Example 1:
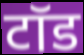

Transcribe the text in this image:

टॉड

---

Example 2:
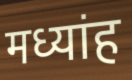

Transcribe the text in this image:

मध्यांह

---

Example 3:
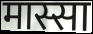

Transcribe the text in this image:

मास्सा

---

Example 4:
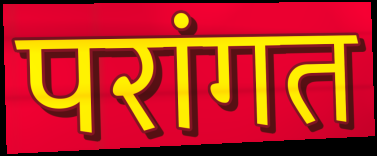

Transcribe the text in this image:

परांगत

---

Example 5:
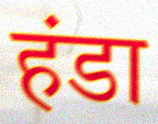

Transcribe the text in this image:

हंडा